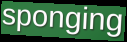
sponging